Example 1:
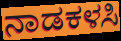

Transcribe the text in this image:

ನಾಡಕಳಸಿ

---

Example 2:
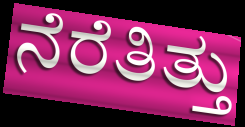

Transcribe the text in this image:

ನೆರೆತಿತ್ತು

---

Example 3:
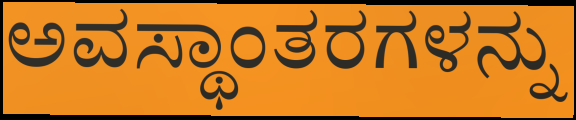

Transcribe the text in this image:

ಅವಸ್ಥಾಂತರಗಳನ್ನು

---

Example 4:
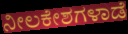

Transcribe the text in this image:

ನೀಲಕೇಶಗಳಾಡೆ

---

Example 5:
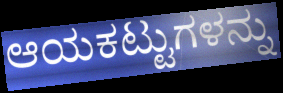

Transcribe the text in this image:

ಆಯಕಟ್ಟುಗಳನ್ನು